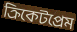
ক্রিকেটপ্রেম